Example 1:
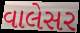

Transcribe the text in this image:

વાલેસર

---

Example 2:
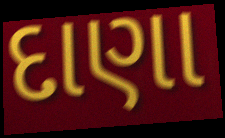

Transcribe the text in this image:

દાણા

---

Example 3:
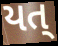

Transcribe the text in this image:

યત્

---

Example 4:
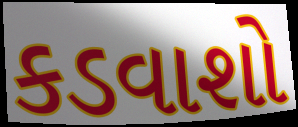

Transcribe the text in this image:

કડવાશો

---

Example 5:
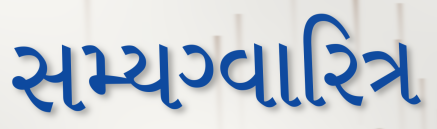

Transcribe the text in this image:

સમ્યગ્વારિત્ર